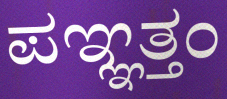
ಪಞ್ಞತ್ತಂ